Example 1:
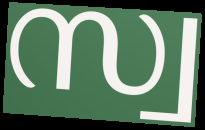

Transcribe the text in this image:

സ്വ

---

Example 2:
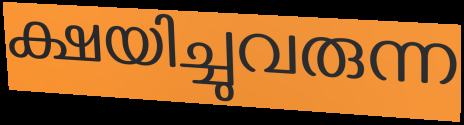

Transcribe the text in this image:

ക്ഷയിച്ചുവരുന്ന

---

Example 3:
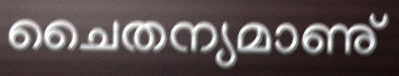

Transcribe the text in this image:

ചൈതന്യമാണു്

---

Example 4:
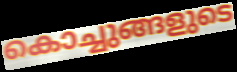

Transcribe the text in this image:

കൊച്ചുങ്ങളുടെ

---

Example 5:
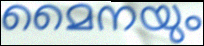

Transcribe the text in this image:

മൈനയും